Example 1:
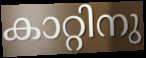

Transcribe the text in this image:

കാറ്റിനു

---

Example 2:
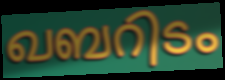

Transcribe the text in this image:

ഖബറിടം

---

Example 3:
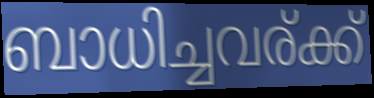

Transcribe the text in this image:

ബാധിച്ചവര്ക്ക്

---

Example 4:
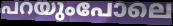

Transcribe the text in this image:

പറയുംപോലെ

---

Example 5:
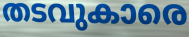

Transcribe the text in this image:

തടവുകാരെ